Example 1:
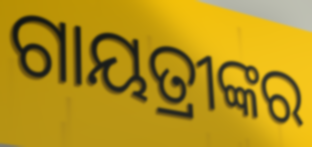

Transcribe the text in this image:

ଗାୟତ୍ରୀଙ୍କର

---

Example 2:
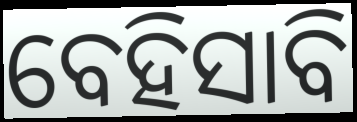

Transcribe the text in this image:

ବେହିସାବି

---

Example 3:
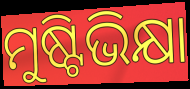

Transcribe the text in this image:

ମୁଷ୍ଟିଭିକ୍ଷା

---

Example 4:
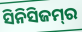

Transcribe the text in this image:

ସିନିସିଜମ୍‌ର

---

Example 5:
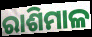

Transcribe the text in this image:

ରାଶିମାଳ